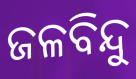
ଜଳବିନ୍ଦୁ